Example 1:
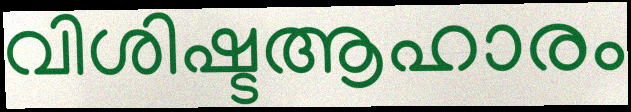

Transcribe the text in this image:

വിശിഷ്ടആഹാരം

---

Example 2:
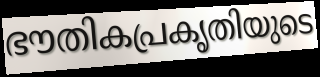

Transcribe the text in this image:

ഭൗതികപ്രകൃതിയുടെ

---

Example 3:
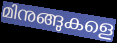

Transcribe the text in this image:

മിനുങ്ങുകളെ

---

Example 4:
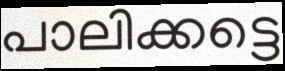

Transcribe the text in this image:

പാലിക്കട്ടെ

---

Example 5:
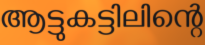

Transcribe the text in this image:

ആട്ടുകട്ടിലിന്റെ